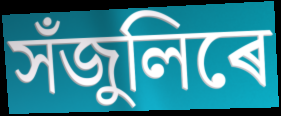
সঁজুলিৰে